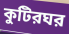
কুটিরঘর